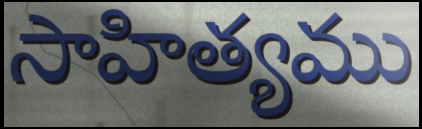
సాహిత్యము